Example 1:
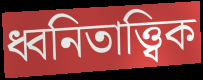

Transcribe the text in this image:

ধ্বনিতাত্ত্বিক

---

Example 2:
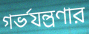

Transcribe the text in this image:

গর্ভযন্ত্রণার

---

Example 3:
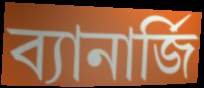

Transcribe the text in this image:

ব্যানার্জি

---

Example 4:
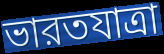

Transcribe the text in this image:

ভারতযাত্রা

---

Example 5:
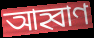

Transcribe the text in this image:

আহ্বাণ